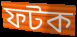
ফটক